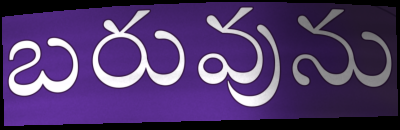
బరువును